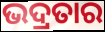
ଭଦ୍ରତାର